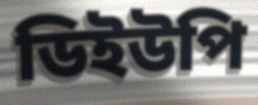
ডিইউপি